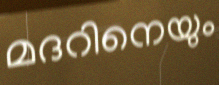
മദറിനെയും